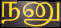
நனு